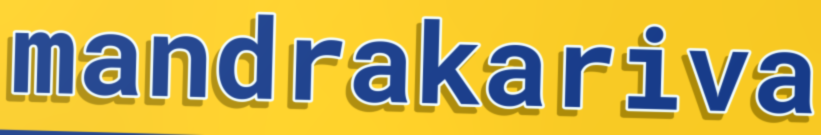
mandrakariva